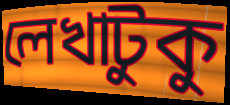
লেখাটুকু